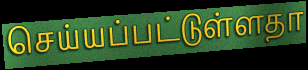
செய்யப்பட்டுள்ளதா